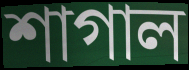
শাগাল